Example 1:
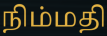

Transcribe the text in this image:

நிம்மதி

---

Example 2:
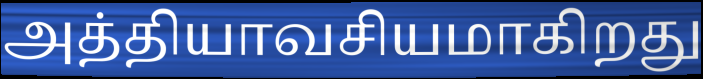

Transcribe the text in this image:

அத்தியாவசியமாகிறது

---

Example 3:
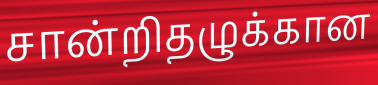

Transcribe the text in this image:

சான்றிதழுக்கான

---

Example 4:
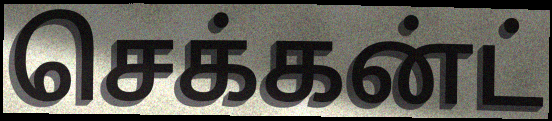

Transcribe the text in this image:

செக்கன்ட்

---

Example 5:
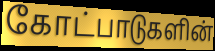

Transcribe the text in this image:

கோட்பாடுகளின்